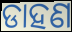
ଡାହଣ